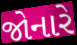
જોનારે